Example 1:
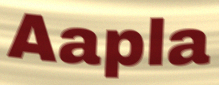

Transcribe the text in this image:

Aapla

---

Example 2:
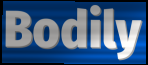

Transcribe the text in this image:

Bodily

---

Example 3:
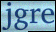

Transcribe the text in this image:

jgre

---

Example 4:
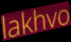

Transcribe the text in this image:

lakhvo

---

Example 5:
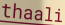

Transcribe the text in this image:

thaali